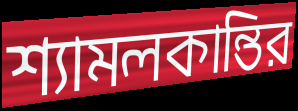
শ্যামলকান্তির